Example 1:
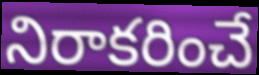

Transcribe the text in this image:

నిరాకరించే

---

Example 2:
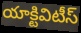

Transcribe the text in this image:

యాక్టివిటీస్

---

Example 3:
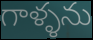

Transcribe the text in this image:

గాళ్ళను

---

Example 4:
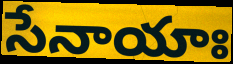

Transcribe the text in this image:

సేనాయాః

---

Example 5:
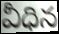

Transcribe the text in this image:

వీధిన